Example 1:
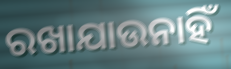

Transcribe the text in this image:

ରଖାଯାଉନାହିଁ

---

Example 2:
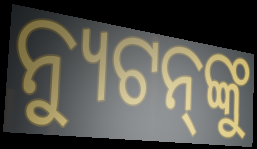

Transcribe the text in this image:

ନ୍ୟୁଟନ୍‌ଙ୍କୁ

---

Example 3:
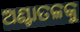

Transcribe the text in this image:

ଅଣ୍ଟାତଳକୁ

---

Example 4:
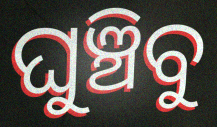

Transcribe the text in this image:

ଘୁଞ୍ଚିବୁ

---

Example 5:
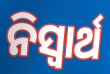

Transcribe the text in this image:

ନିସ୍ୱାର୍ଥ